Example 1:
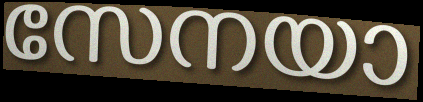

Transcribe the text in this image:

സേനയാ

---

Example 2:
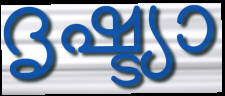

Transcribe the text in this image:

ദൃഷ്ട്യാ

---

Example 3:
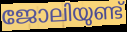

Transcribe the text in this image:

ജോലിയുണ്ട്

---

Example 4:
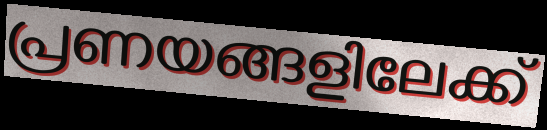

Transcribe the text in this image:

പ്രണയങ്ങളിലേക്ക്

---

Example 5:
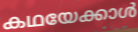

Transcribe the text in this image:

കഥയേക്കാൾ